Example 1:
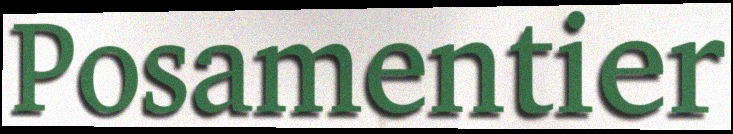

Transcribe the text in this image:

Posamentier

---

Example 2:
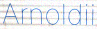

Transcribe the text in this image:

Arnoldii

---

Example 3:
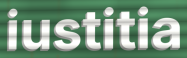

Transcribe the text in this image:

iustitia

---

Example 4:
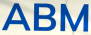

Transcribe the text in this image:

ABM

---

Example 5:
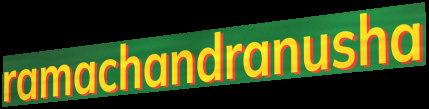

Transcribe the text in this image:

ramachandranusha